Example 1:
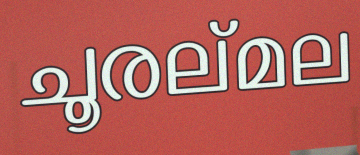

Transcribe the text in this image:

ചൂരല്മല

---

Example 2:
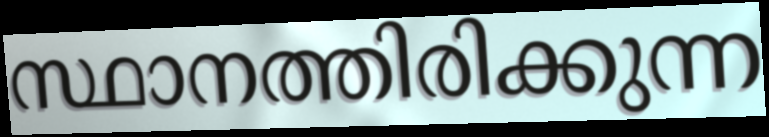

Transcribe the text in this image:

സ്ഥാനത്തിരിക്കുന്ന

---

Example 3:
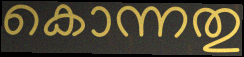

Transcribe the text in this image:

കൊന്നതു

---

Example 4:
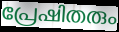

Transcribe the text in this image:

പ്രേഷിതരും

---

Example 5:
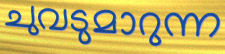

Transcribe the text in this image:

ചുവടുമാറുന്ന